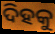
ଦିହକୁ